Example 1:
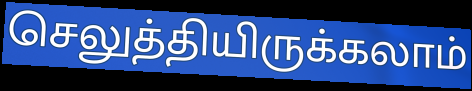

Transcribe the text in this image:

செலுத்தியிருக்கலாம்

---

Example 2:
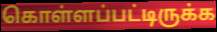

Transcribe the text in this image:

கொள்ளப்பட்டிருக்க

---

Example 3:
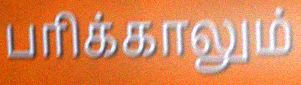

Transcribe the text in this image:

பரிக்காலும்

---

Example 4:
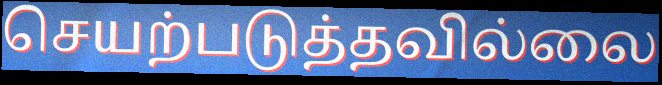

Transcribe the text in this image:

செயற்படுத்தவில்லை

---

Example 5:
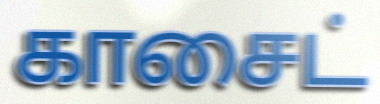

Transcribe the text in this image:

காசைட்